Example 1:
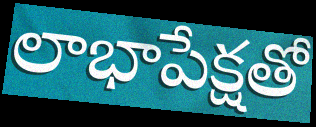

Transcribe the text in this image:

లాభాపేక్షతో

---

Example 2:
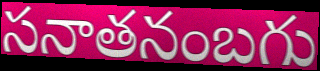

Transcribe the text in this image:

సనాతనంబగు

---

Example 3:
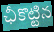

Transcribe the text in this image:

ఛీకొట్టిన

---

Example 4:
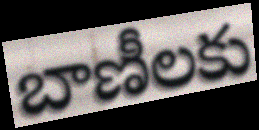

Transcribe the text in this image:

బాణీలకు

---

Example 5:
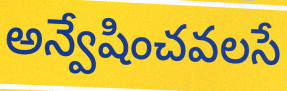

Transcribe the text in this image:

అన్వేషించవలసే